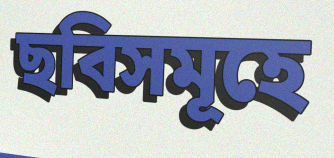
ছবিসমূহে